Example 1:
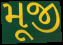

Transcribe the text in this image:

મૂજી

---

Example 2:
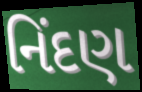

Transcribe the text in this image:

નિંદણ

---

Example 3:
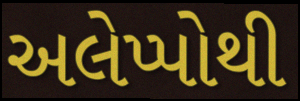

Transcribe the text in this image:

અલેપ્પોથી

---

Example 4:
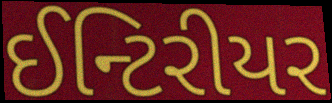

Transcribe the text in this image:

ઈન્ટિરીયર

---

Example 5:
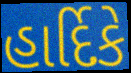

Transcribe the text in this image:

હાર્દિકે